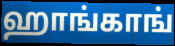
ஹாங்காங்